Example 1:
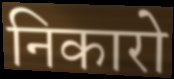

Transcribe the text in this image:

निकारो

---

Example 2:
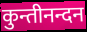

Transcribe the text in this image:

कुन्तीनन्दन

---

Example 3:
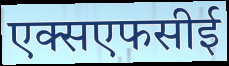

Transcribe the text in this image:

एक्सएफसीई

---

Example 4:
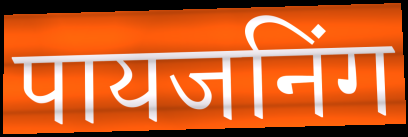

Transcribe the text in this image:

पायजनिंग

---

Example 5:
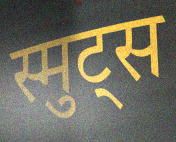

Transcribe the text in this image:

स्मुट्स